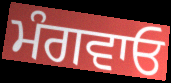
ਮੰਗਵਾਓ